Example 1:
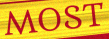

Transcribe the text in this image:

MOST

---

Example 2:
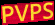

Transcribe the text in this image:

PVPS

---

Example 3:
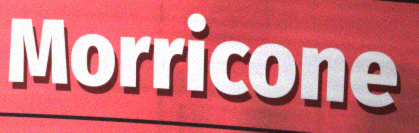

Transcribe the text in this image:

Morricone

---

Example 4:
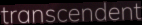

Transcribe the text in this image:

transcendent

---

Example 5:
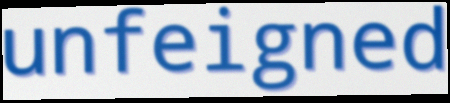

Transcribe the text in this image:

unfeigned